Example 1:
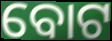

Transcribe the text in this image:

ବୋଟ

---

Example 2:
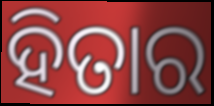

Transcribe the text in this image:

ହିତାର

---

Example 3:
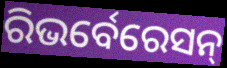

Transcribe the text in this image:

ରିଭର୍ବେରେସନ୍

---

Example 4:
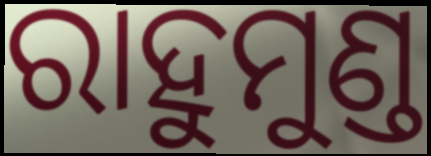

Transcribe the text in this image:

ରାହୁମୁଣ୍ଡ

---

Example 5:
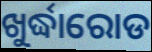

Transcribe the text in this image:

ଖୁର୍ଦ୍ଧାରୋଡ